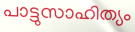
പാട്ടുസാഹിത്യം